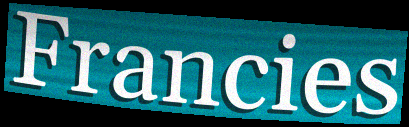
Francies